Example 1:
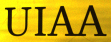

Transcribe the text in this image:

UIAA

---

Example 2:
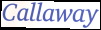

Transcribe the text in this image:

Callaway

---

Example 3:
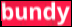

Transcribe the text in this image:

bundy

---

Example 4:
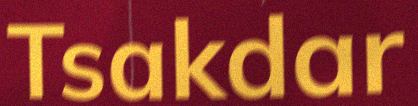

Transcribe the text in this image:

Tsakdar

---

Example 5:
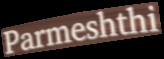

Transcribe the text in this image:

Parmeshthi